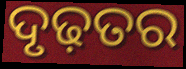
ଦୃଢ଼ତର